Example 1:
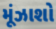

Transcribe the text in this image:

મૂંઝાશો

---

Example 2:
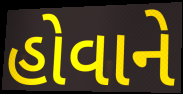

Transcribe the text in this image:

હોવાને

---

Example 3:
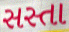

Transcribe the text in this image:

સસ્તા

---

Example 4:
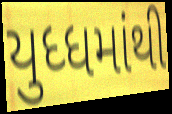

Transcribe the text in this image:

યુધ્ધમાંથી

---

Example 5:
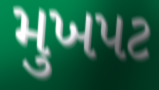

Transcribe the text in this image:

મુખપટ